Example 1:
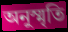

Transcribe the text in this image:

অনুস্মৃতি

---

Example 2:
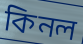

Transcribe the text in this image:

কিনল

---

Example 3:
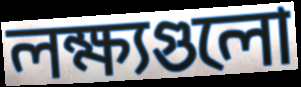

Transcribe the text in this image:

লক্ষ্যগুলো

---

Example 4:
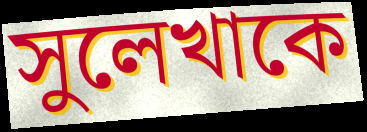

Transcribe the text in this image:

সুলেখাকে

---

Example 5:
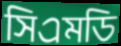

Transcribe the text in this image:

সিএমডি